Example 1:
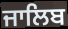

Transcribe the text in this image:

ਜਾਲਿਬ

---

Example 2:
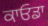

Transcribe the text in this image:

ਕਾਓਡਾ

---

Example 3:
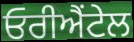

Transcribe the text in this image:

ਓਰੀਐਂਟੇਲ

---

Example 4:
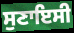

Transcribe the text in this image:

ਸੁਣਾਇਸੀ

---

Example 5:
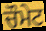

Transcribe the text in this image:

ਚੌਮੇਟ